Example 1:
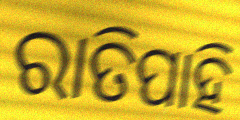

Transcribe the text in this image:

ରାତିପାହି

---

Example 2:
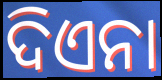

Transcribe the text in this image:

ଦିଏନା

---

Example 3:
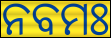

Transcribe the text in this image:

ନବମଃ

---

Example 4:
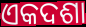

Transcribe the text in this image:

ଏକଦଶା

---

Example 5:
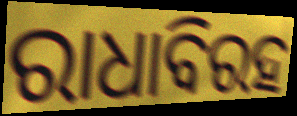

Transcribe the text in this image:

ରାଧାବିରହ